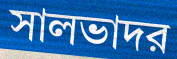
সালভাদর